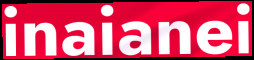
inaianei